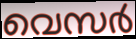
വെസർ